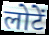
लोटें